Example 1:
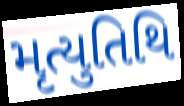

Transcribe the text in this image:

મૃત્યુતિથિ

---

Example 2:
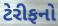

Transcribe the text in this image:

ટેરીફનો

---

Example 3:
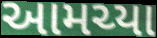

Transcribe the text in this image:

આમચ્યા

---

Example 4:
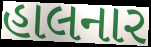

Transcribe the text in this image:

હાલનાર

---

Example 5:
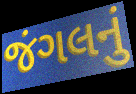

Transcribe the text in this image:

જંગલનું